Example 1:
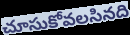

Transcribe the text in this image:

చూసుకోవలసినది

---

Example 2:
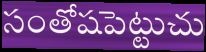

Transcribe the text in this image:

సంతోషపెట్టుచు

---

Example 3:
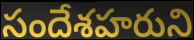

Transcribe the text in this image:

సందేశహరుని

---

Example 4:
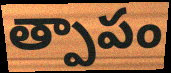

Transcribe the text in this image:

త్పాపం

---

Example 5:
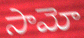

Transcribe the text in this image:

సామో